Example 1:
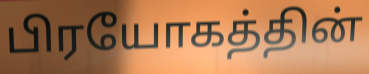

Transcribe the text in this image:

பிரயோகத்தின்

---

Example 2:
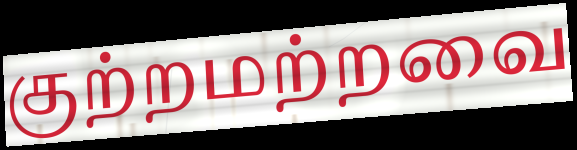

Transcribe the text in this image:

குற்றமற்றவை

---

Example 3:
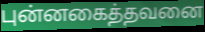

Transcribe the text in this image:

புன்னகைத்தவனை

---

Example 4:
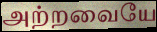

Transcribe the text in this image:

அற்றவையே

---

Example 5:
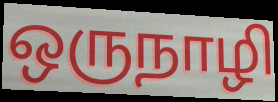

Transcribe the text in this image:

ஒருநாழி